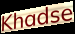
Khadse